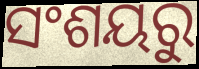
ସଂଶୟରୁ